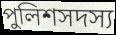
পুলিশসদস্য